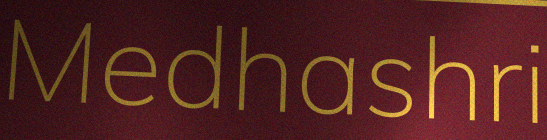
Medhashri